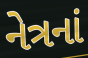
નેત્રનાં